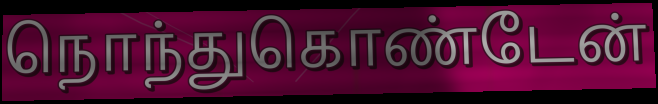
நொந்துகொண்டேன்